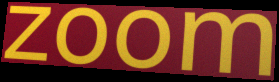
zoom